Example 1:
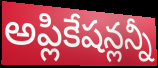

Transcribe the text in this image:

అప్లికేషన్లన్నీ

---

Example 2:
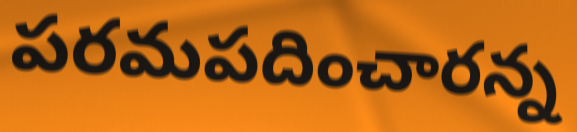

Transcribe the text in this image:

పరమపదించారన్న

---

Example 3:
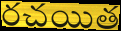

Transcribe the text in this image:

రచయిత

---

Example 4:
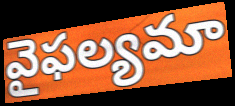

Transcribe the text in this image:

వైఫల్యమా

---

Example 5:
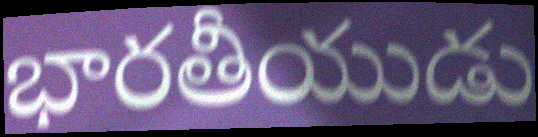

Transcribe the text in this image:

భారతీయుడు